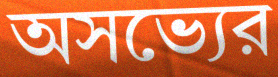
অসভ্যের